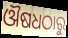
ଔଷଧଠାରୁ